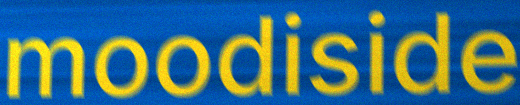
moodiside